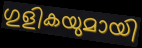
ഗുളികയുമായി